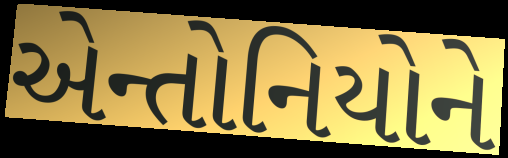
એન્તોનિયોને